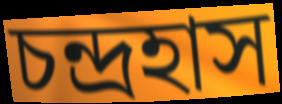
চন্দ্রহাস